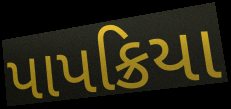
પાપક્રિયા